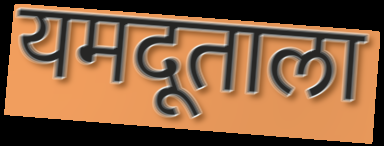
यमदूताला